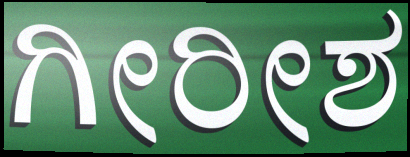
ಗೀರೀಶ